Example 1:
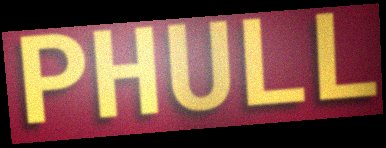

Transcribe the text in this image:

PHULL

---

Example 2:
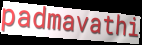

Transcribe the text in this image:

padmavathi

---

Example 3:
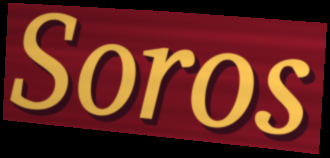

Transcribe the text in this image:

Soros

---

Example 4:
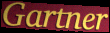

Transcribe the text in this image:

Gartner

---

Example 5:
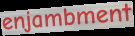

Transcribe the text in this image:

enjambment